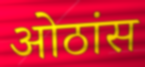
ओठांस